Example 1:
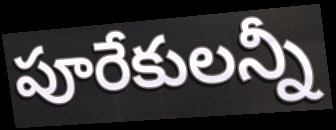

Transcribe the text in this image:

పూరేకులన్నీ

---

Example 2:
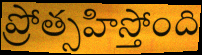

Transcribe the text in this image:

ప్రోత్సహిస్తోంది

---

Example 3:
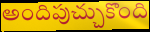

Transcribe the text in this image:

అందిపుచ్చుకొంది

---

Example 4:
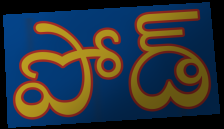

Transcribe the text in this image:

పోడ్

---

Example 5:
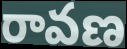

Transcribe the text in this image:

రావణ